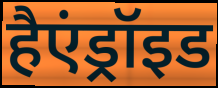
हैएंड्रॉइड